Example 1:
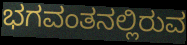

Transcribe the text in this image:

ಭಗವಂತನಲ್ಲಿರುವ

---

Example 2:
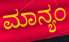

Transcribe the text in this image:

ಮಾನ್ಯಂ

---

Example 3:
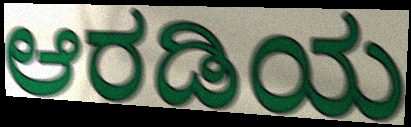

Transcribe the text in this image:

ಆರಡಿಯ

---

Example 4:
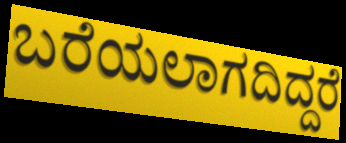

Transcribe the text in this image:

ಬರೆಯಲಾಗದಿದ್ದರೆ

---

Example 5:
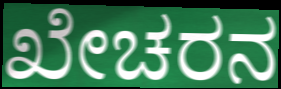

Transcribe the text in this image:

ಖೇಚರನ